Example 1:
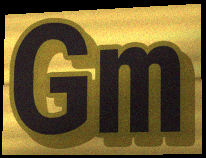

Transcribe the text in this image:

Gm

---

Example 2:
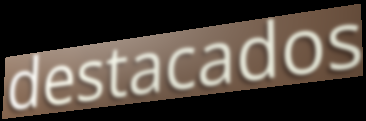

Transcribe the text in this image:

destacados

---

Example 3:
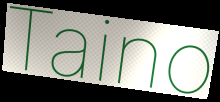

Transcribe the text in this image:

Taino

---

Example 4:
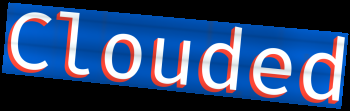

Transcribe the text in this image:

Clouded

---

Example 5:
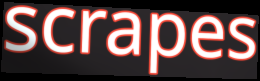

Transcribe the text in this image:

scrapes